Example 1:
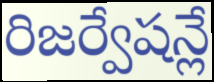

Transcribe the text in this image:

రిజర్వేషన్లే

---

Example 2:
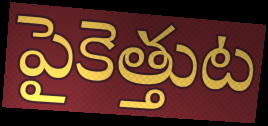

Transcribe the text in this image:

పైకెత్తుట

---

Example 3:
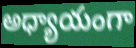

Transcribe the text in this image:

అధ్యాయంగా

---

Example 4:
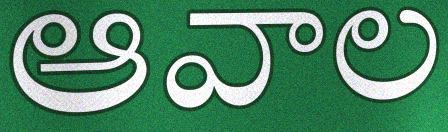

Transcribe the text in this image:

ఆవాల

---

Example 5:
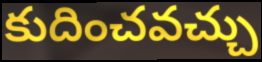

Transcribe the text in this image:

కుదించవచ్చు